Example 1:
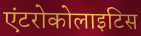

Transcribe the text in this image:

एंटरोकोलाइटिस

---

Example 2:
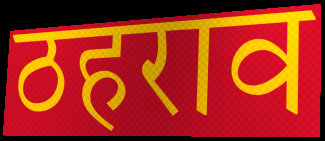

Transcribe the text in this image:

ठहराव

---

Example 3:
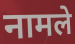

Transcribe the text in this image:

नामले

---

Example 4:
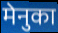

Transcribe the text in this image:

मेनुका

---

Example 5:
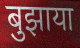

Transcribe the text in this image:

बुझाया